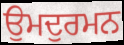
ਉਮਦੁਰਮਨ